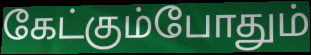
கேட்கும்போதும்